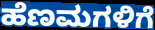
ಹೆಣಮಗಳಿಗೆ